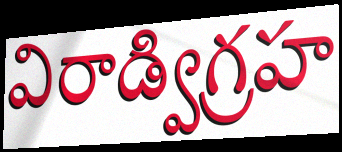
విరాడ్విగ్రహ